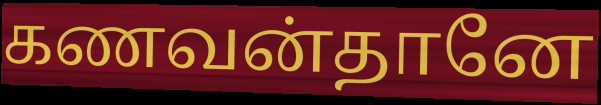
கணவன்தானே